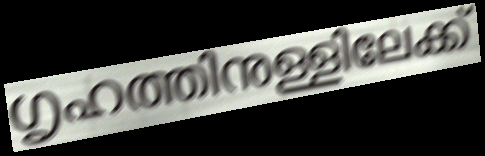
ഗൃഹത്തിനുള്ളിലേക്ക്